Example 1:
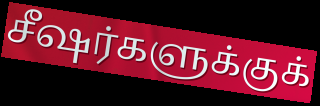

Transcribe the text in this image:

சீஷர்களுக்குக்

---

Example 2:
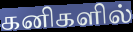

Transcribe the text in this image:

கனிகளில்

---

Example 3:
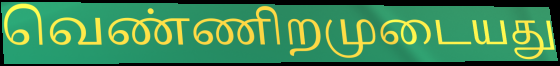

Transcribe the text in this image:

வெண்ணிறமுடையது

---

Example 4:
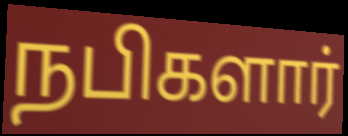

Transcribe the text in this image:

நபிகளார்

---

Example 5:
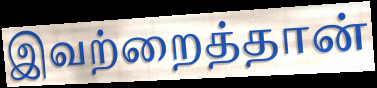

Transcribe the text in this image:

இவற்றைத்தான்